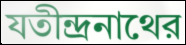
যতীন্দ্রনাথের